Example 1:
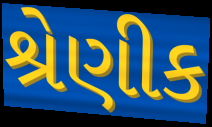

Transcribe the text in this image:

શ્રેણીક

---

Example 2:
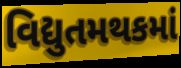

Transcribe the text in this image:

વિદ્યુતમથકમાં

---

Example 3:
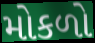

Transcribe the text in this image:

મોકળો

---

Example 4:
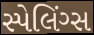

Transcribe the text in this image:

સ્પેલિંગ્સ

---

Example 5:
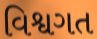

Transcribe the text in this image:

વિશ્વગત